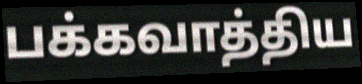
பக்கவாத்திய